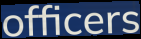
officers